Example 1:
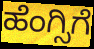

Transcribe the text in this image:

ಹೆಂಗ್ಸಿಗೆ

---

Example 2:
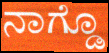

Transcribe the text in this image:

ನಾಗ್ಡೊ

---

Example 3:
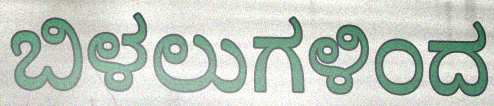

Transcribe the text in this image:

ಬಿಳಲುಗಳಿಂದ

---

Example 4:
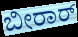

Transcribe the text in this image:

ಬೀರಾರ್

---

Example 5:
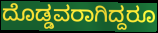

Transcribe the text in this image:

ದೊಡ್ಡವರಾಗಿದ್ದರೂ